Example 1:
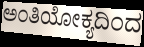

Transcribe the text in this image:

ಅಂತಿಯೋಕ್ಯದಿಂದ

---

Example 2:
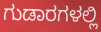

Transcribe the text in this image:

ಗುಡಾರಗಳಲ್ಲಿ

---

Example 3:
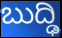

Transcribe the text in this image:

ಬುದ್ಢಿ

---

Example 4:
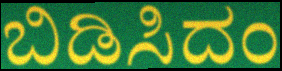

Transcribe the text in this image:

ಬಿಡಿಸಿದಂ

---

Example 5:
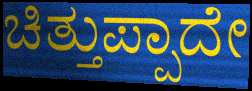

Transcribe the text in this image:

ಚಿತ್ತುಪ್ಪಾದೇ